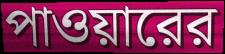
পাওয়ারের